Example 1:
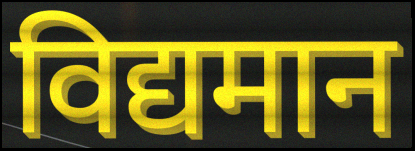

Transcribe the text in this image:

विद्यमान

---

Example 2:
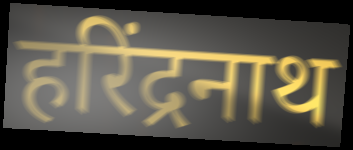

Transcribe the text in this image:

हरिंद्रनाथ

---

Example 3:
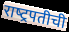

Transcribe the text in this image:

राष्ट्रपतीची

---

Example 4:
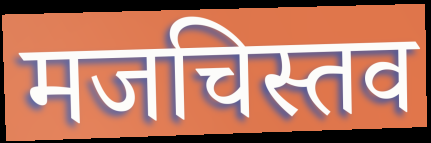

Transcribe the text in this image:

मजचिस्तव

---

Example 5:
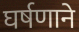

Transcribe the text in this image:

घर्षणाने